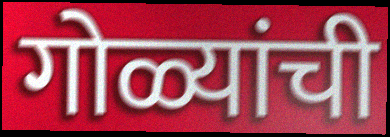
गोळ्यांची